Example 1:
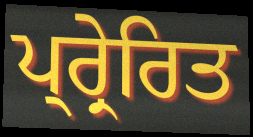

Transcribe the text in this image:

ਪ੍ਰ੍ਰੇਰਿਤ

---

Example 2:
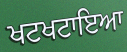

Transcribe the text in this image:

ਖਟਖਟਾਇਆ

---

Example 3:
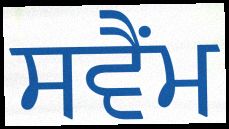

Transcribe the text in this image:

ਸਵੈਂਮ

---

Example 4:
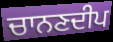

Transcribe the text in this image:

ਚਾਨਣਦੀਪ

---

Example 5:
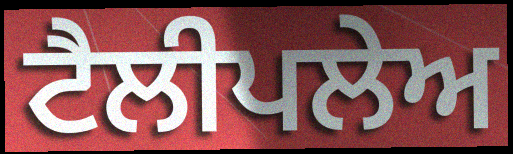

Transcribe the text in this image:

ਟੈਲੀਪਲੇਅ